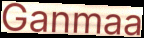
Ganmaa